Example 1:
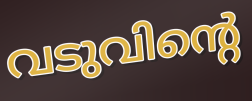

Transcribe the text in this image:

വടുവിന്റെ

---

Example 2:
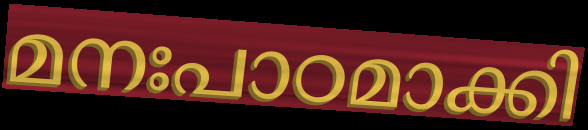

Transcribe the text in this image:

മനഃപാഠമാക്കി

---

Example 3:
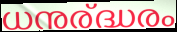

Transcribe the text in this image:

ധനുര്ദ്ധരം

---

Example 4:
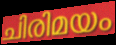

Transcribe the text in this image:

ചിരിമയം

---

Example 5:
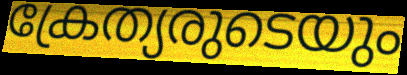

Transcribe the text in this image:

ക്രേത്യരുടെയും